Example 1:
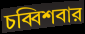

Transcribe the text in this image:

চব্বিশবার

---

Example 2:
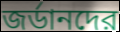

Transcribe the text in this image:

জর্ডানদের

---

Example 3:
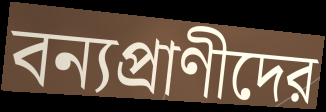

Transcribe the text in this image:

বন্যপ্রাণীদের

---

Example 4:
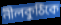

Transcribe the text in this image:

নীলকুঠিকে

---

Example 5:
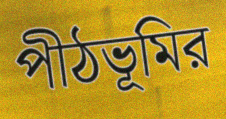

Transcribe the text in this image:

পীঠভূমির